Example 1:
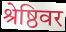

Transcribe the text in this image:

श्रेष्ठिवर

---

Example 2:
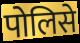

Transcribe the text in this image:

पोलिसे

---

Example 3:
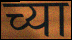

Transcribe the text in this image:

च्या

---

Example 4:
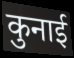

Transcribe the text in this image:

कुनाई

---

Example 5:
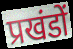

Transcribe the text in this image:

प्रखंडों